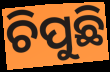
ଚିପୁଛି